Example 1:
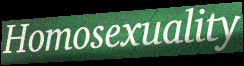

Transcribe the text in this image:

Homosexuality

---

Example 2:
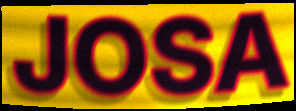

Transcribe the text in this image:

JOSA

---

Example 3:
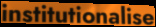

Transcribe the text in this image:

institutionalise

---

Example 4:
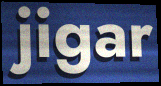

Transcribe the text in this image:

jigar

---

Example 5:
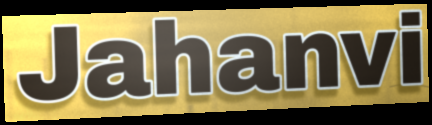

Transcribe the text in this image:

Jahanvi